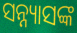
ସନ୍ନ୍ୟାସଙ୍କ